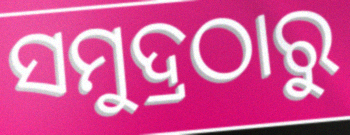
ସମୁଦ୍ରଠାରୁ